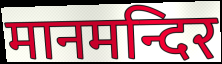
मानमन्दिर